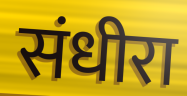
संधीरा